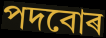
পদবোৰ